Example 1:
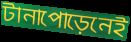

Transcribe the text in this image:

টানাপোড়েনেই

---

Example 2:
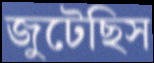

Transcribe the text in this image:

জুটেছিস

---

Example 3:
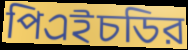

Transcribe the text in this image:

পিএইচডির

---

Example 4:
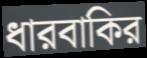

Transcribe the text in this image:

ধারবাকির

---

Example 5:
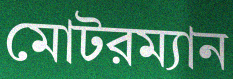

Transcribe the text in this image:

মোটরম্যান